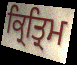
ਕ੍ਰਿਤ੍ਰਿਮ